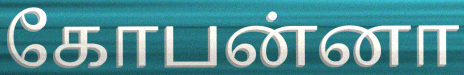
கோபன்னா